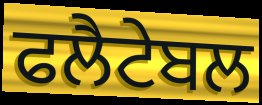
ਫਲੈਟੇਬਲ